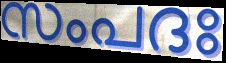
സംപദഃ